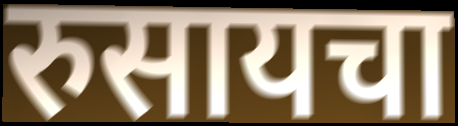
रुसायचा